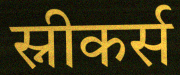
स्नीकर्स